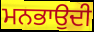
ਮਨਭਾਉਦੀ